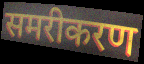
समरीकरण